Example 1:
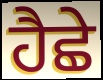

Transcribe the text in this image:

ਹੈਛੇ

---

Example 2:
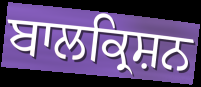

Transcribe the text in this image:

ਬਾਲਕ੍ਰਿਸ਼ਨ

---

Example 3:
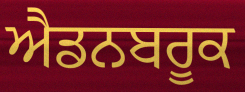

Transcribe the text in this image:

ਐਡਨਬਰੂਕ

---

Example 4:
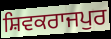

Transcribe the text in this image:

ਸ਼ਿਵਕਰਾਜਪੁਰ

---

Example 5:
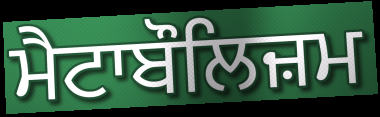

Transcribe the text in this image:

ਮੈਟਾਬੌਲਿਜ਼ਮ